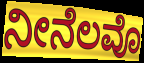
ನೀನೆಲವೊ